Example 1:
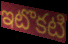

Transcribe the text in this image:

ఇటొకటి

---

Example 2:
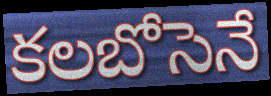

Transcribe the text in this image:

కలబోసెనే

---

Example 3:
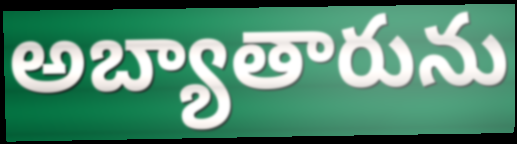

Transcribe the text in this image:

అబ్యాతారును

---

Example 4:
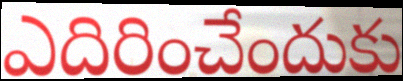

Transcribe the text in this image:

ఎదిరించేందుకు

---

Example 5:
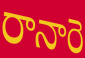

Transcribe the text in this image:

రానారె